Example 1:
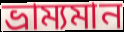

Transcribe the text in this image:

ভ্ৰাম্যমান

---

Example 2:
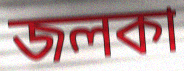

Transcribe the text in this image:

জলকা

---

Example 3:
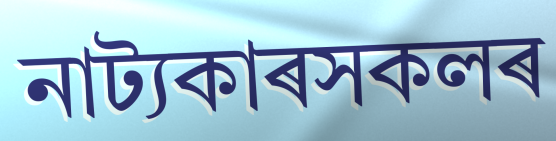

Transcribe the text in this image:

নাট্যকাৰসকলৰ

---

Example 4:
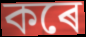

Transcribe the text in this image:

কৰে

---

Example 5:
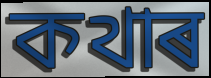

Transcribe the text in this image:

কথাৰ